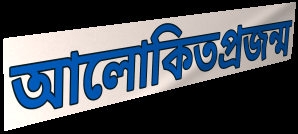
আলোকিতপ্রজন্ম